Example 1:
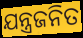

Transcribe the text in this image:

ଯନ୍ତ୍ରଜନିତ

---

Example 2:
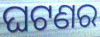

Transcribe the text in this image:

ଘଟଣର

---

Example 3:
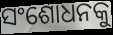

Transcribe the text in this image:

ସଂଶୋଧନକୁ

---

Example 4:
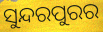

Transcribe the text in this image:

ସୁନ୍ଦରପୁରର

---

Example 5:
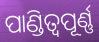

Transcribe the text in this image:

ପାଣ୍ଡିତ୍ୱପୂର୍ଣ୍ଣ